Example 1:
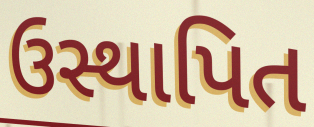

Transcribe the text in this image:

ઉસ્થાપિત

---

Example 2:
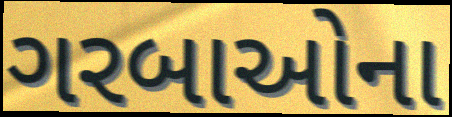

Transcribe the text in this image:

ગરબાઓના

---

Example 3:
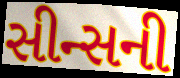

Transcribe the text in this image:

સીન્સની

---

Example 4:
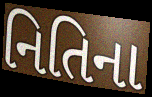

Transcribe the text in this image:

નિતિના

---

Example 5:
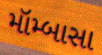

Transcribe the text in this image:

મૉમ્બાસા